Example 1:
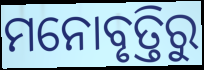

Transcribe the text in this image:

ମନୋବୃତ୍ତିରୁ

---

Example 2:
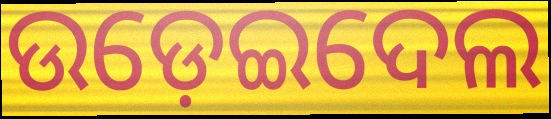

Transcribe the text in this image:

ଉଡ଼େଇଦେଲ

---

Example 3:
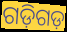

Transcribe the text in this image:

ଗଡ଼ିଗଡ଼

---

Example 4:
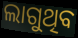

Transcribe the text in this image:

ଲାଗୁଥିବ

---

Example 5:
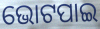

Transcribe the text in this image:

ଭୋଟପାଇ